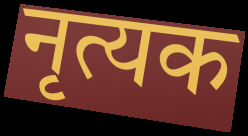
नृत्यक